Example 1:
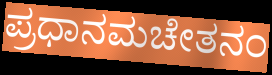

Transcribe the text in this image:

ಪ್ರಧಾನಮಚೇತನಂ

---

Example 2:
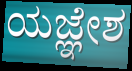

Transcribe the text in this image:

ಯಜ್ಞೇಶ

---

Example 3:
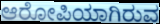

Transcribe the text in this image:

ಆರೋಪಿಯಾಗಿರುವ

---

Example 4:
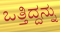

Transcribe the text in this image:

ಒತ್ತಿದ್ದನ್ನು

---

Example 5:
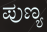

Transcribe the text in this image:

ಪುಣ್ಯ